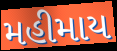
મહીમાય